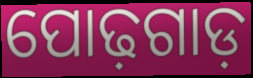
ପୋଢ଼ଗାଡ଼